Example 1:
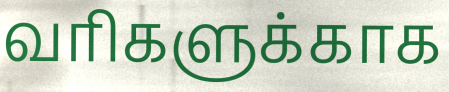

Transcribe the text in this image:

வரிகளுக்காக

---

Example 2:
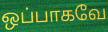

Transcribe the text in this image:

ஒப்பாகவே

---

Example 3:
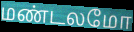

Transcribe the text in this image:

மண்டலமோ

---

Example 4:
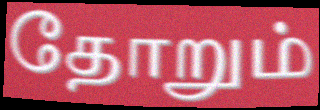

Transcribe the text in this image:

தோறும்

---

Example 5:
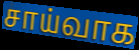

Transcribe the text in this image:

சாய்வாக